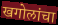
खगोलांचा